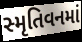
સ્મૃતિવનમાં